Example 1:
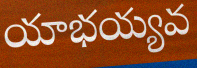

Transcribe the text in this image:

యాభయ్యవ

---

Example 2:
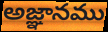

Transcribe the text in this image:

అజ్ఞానము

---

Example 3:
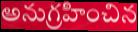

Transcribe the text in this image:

అనుగ్రహించిన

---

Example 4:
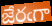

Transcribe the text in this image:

జేరఁగా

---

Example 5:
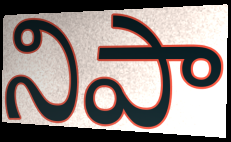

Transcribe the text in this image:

నిపా